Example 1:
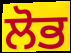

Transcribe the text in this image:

ਲੋਭ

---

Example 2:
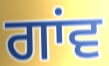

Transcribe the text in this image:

ਗਾਂਵ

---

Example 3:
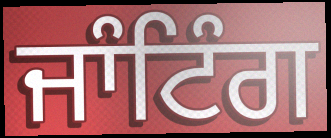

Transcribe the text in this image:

ਜਾੰਟਿੰਗ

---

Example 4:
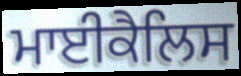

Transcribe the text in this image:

ਮਾਈਕੈਲਿਸ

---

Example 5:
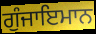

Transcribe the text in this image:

ਗੁੰਜਾਇਮਾਨ